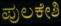
ಪುಲಕೇಶಿ